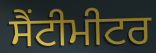
ਸੈਂਟੀਮੀਟਰ